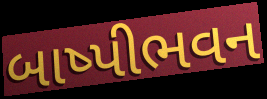
બાષ્પીભવન